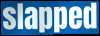
slapped